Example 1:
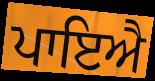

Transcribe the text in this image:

ਪਾਇਐ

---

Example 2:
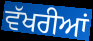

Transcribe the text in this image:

ਵੱਖਰੀਆਂ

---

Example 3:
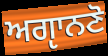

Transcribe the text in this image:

ਅਗੵਾਨਣੋ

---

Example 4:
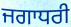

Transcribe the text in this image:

ਜਗਾਧਰੀ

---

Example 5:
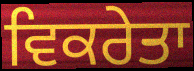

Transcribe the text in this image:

ਵਿਕਰੇਤਾ